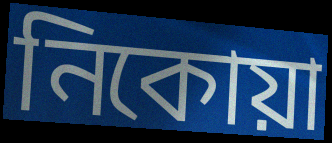
নিকোয়া